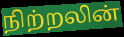
நிற்றலின்